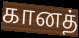
கானத்